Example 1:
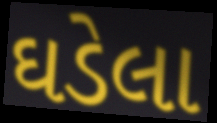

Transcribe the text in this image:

ઘડેલા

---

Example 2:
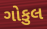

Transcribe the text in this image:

ગોકુલ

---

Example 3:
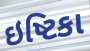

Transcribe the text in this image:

ઇષ્ટિકા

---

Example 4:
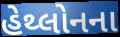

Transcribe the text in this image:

હેથ્લોનના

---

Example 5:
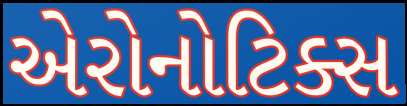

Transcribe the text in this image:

એરોનોટિક્સ